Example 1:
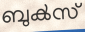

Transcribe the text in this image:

ബുൿസ്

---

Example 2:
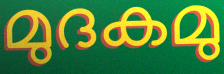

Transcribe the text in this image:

മുദകമു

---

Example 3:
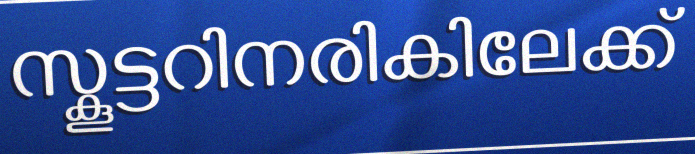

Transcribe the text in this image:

സ്കൂട്ടറിനരികിലേക്ക്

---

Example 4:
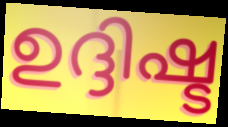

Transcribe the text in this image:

ഉദ്ദിഷ്ട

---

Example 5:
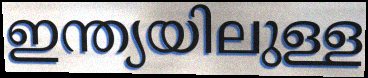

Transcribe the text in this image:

ഇന്ത്യയിലുള്ള